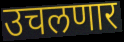
उचलणार